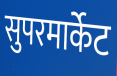
सुपरमार्केट